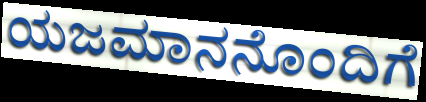
ಯಜಮಾನನೊಂದಿಗೆ